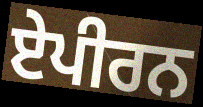
ਏਪੀਰਨ